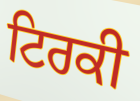
ਟਿਰਕੀ